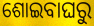
ଶୋଇବାଘରୁ